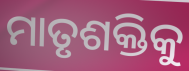
ମାତୃଶକ୍ତିକୁ